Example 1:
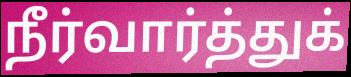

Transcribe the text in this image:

நீர்வார்த்துக்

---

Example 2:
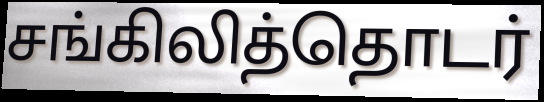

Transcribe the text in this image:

சங்கிலித்தொடர்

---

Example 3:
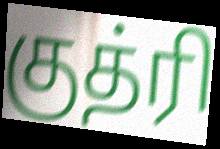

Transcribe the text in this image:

குத்ரி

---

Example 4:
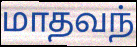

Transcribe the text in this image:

மாதவந்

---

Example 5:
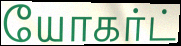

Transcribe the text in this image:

யோகர்ட்